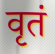
वृतं